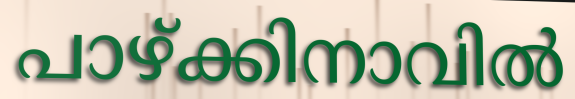
പാഴ്ക്കിനാവിൽ